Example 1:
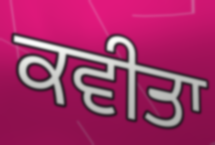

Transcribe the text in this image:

ਕਵੀਤਾ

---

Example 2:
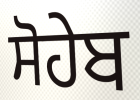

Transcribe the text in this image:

ਸੋਹੇਬ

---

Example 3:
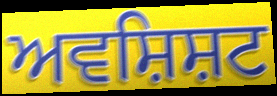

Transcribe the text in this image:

ਅਵਸ਼ਿਸ਼ਟ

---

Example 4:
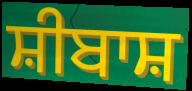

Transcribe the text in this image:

ਸ਼ੀਬਾਸ਼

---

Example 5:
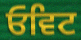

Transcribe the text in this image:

ਓਵਿਟ